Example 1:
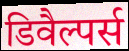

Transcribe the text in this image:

डिवैल्पर्स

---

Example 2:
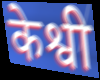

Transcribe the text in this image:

केश्वी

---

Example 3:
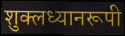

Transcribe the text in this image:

शुक्लध्यानरूपी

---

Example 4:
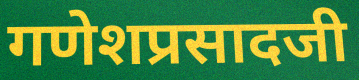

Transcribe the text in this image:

गणेशप्रसादजी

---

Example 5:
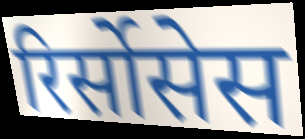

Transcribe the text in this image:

रिर्सोसेस